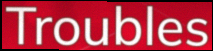
Troubles